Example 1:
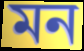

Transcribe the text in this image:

মন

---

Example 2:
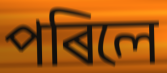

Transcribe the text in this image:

পৰিলে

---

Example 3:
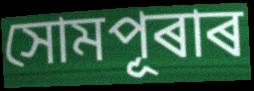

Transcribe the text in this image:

সোমপূৰাৰ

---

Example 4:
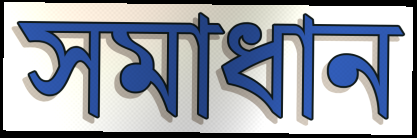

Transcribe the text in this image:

সমাধান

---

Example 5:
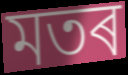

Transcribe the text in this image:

মতৰ